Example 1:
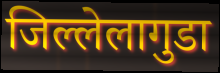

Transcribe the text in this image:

जिल्लेलागुडा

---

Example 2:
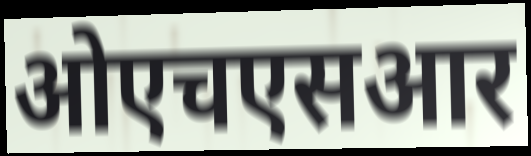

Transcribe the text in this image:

ओएचएसआर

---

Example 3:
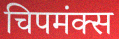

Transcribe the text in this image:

चिपमंक्स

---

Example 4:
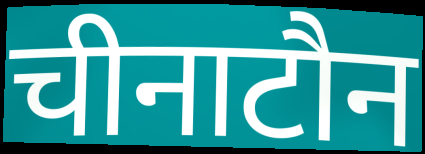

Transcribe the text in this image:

चीनाटौन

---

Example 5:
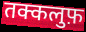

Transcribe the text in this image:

तक्कलुफ़